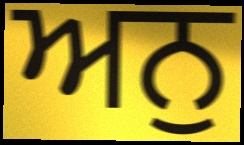
ਅਨੁ